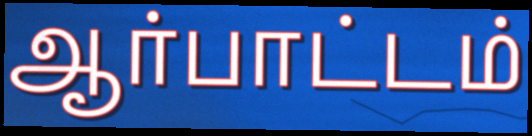
ஆர்பாட்டம்